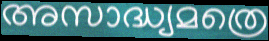
അസാദ്ധ്യമത്രെ